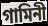
গামিনী